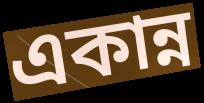
একান্ন